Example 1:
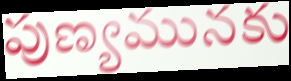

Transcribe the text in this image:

పుణ్యమునకు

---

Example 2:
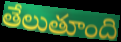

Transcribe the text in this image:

తేలుతూంది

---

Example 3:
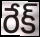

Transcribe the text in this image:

రేక్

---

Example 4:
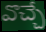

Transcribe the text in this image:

వొచ్చే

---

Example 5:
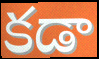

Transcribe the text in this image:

కడా